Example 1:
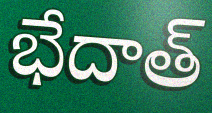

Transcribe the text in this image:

భేదాత్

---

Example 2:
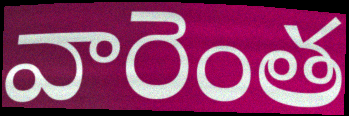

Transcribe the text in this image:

వారెంత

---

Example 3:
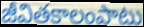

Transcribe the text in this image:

జీవితకాలంపాటు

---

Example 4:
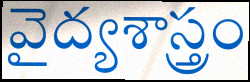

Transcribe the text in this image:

వైద్యశాస్త్రం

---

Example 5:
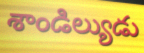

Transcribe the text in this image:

శాండిల్యుడు